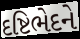
દષ્ટિભેદને